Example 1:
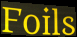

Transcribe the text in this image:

Foils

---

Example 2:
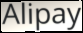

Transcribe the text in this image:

Alipay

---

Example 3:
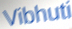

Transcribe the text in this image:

Vibhuti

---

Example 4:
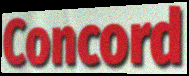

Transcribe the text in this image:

Concord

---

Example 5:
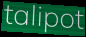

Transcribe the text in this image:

talipot